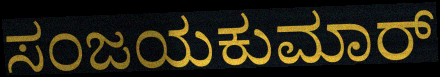
ಸಂಜಯಕುಮಾರ್